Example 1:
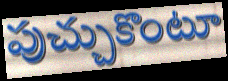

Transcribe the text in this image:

పుచ్చుకొంటూ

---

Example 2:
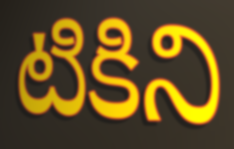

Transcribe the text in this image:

టికిని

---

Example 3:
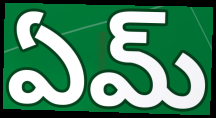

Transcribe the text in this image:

ఏమ్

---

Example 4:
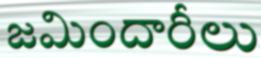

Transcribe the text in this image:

జమిందారీలు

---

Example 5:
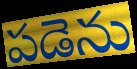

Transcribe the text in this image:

పడెను